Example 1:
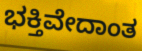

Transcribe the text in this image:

ಭಕ್ತಿವೇದಾಂತ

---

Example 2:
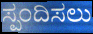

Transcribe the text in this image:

ಸ್ಪಂದಿಸಲು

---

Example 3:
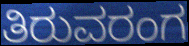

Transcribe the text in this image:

ತಿರುವರಂಗ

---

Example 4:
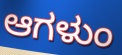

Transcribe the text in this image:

ಆಗಳುಂ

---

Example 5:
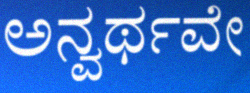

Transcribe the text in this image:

ಅನ್ವರ್ಥವೇ